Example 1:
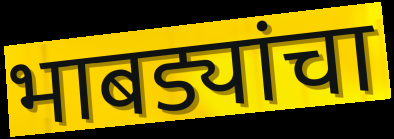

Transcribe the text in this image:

भाबड्यांचा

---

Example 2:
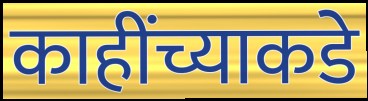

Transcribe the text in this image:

काहींच्याकडे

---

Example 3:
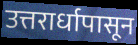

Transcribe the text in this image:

उत्तरार्धापासून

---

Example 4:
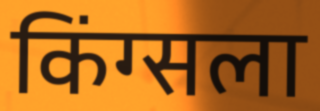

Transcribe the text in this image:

किंग्सला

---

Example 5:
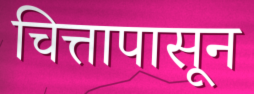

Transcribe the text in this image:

चित्तापासून